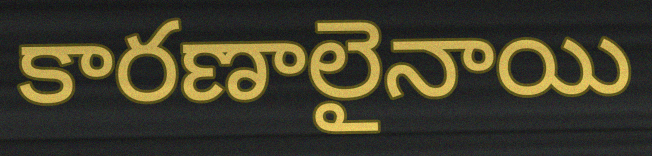
కారణాలైనాయి